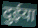
दुईया